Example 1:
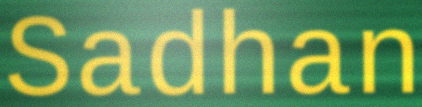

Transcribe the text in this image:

Sadhan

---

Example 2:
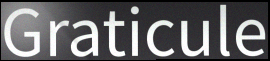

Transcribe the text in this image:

Graticule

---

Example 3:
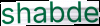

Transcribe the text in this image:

shabde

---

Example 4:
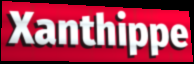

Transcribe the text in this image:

Xanthippe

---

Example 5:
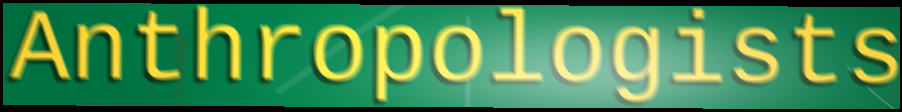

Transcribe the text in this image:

Anthropologists